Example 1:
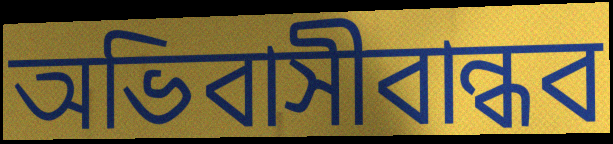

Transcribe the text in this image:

অভিবাসীবান্ধব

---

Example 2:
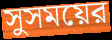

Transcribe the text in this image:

সুসময়ের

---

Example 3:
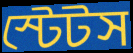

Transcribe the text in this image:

স্টেটস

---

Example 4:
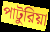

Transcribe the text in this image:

পাটুরিয়া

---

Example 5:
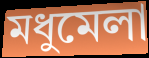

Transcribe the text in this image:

মধুমেলা